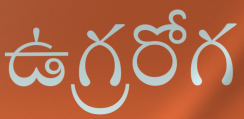
ఉగ్రరోగ